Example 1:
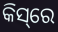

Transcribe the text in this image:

କିସ୍‌ରେ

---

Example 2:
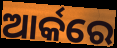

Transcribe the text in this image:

ଆର୍କରେ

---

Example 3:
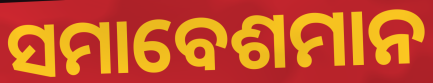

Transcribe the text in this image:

ସମାବେଶମାନ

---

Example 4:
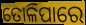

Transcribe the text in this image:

ତୋଳିପାରେ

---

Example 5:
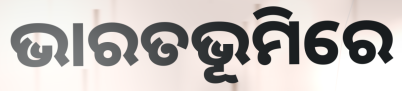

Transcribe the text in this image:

ଭାରତଭୂମିରେ